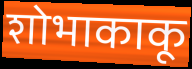
शोभाकाकू